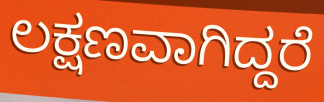
ಲಕ್ಷಣವಾಗಿದ್ದರೆ